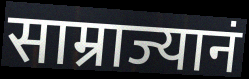
साम्राज्यानं